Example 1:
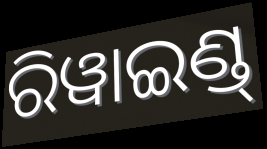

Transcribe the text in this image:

ରିୱାଇଣ୍ଡ୍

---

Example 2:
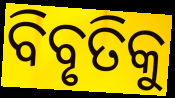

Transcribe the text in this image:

ବିବୃତିକୁ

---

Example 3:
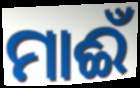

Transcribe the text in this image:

ମାଈଁ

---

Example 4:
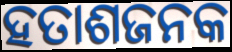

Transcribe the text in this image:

ହତାଶଜନକ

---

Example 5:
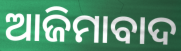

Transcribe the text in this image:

ଆଜିମାବାଦ